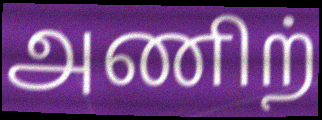
அணிற்